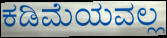
ಕಡಿಮೆಯವಲ್ಲ